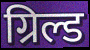
ग्रिल्ड